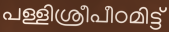
പള്ളിശ്രീപീഠമിട്ട്